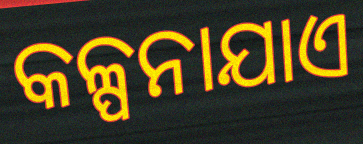
କଳ୍ପନାଯାଏ